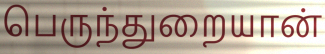
பெருந்துறையான்